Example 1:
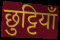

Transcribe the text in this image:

छुट्टियाँ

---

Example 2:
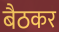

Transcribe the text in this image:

बैठकर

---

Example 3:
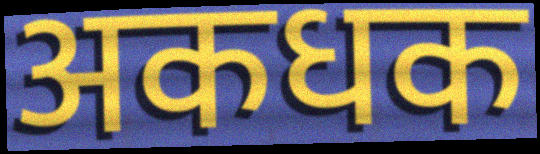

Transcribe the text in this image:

अकधक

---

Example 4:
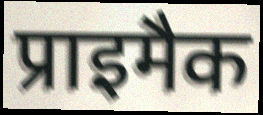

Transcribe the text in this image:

प्राइमैक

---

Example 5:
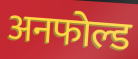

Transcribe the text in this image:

अनफोल्ड